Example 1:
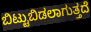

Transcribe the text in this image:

ಬಿಟ್ಟುಬಿಡಲಾಗುತ್ತದೆ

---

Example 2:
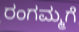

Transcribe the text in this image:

ರಂಗಮ್ಮಗೆ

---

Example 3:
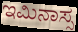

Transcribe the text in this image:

ಇಮಿನಾಸ್ಸ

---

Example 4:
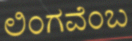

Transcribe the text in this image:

ಲಿಂಗವೆಂಬ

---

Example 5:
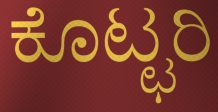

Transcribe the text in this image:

ಕೊಟ್ಟರಿ